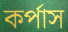
কর্পাস